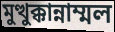
মুত্থুক্কান্নাম্মল